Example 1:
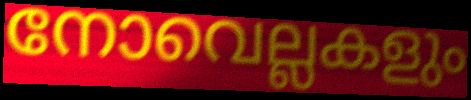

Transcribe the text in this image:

നോവെല്ലകളും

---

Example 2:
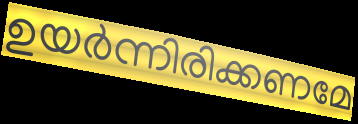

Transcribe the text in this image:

ഉയർന്നിരിക്കണമേ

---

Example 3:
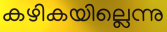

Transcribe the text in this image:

കഴികയില്ലെന്നു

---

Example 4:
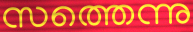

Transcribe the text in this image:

സത്തെന്നു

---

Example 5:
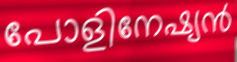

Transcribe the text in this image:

പോളിനേഷ്യൻ